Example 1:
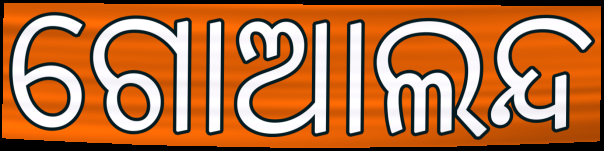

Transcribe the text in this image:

ଗୋଆଲନ୍ଦ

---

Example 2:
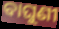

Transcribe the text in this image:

ବାଘୁଣୀ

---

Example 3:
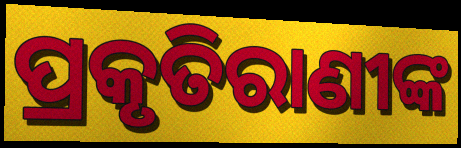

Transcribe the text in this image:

ପ୍ରକୃତିରାଣୀଙ୍କ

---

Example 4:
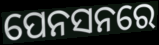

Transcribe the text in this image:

ପେନସନରେ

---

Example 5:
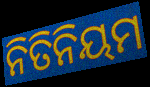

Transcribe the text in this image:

ନିତିନିୟମ